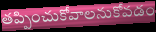
తప్పించుకోవాలనుకోవడం